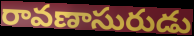
రావణాసురుడు